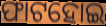
ଫାଟହୋଇ